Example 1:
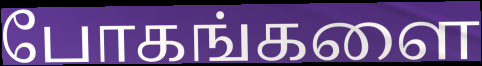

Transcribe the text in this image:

போகங்களை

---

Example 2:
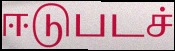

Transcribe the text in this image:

ஈடுபடச்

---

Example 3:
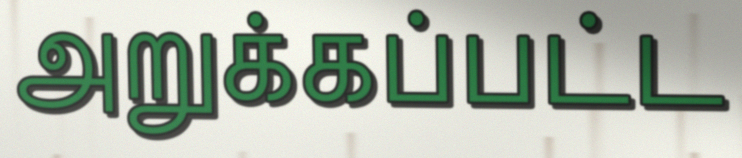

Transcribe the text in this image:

அறுக்கப்பட்ட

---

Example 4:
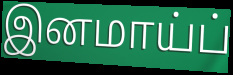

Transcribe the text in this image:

இனமாய்ப்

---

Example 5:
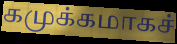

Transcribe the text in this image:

கமுக்கமாகச்